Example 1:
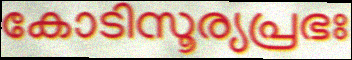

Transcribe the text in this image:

കോടിസൂര്യപ്രഭഃ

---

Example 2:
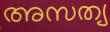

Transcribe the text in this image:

അസത്യ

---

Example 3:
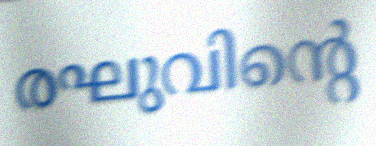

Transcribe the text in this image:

രഘുവിന്റെ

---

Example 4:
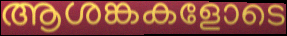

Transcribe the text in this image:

ആശങ്കകളോടെ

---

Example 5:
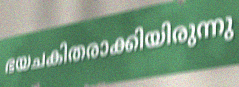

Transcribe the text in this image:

ഭയചകിതരാക്കിയിരുന്നു